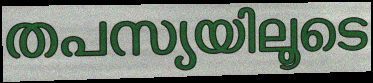
തപസ്യയിലൂടെ